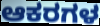
ಆಕರಗಳ